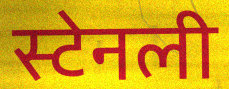
स्टेनली